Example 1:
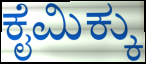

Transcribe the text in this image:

ಕೈಮಿಕ್ಕು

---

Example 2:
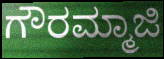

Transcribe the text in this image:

ಗೌರಮ್ಮಾಜಿ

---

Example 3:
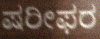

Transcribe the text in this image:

ಷರೀಫರ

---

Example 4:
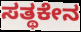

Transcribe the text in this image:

ಸತ್ಥಕೇನ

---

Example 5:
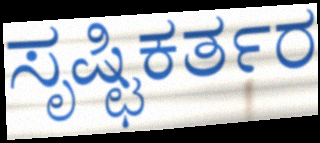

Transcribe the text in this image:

ಸೃಷ್ಟಿಕರ್ತರ